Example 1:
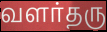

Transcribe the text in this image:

வளர்தரு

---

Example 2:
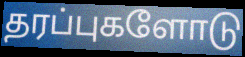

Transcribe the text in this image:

தரப்புகளோடு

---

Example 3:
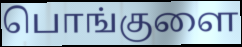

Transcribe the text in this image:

பொங்குளை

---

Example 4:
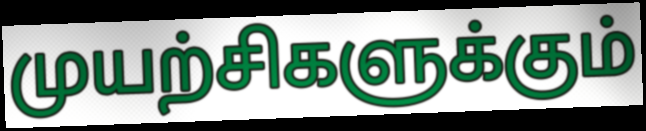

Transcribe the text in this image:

முயற்சிகளுக்கும்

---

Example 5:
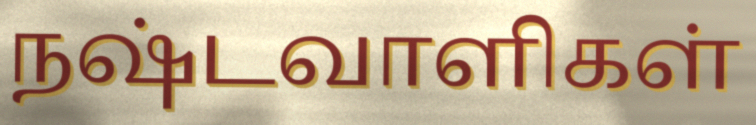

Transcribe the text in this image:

நஷ்டவாளிகள்